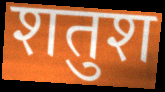
शतुश